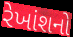
રેખાંશનો